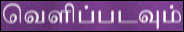
வெளிப்படவும்